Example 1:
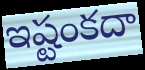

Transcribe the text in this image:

ఇష్టంకదా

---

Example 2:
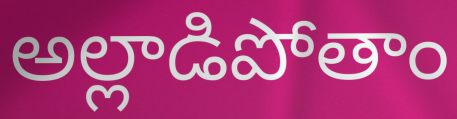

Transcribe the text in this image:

అల్లాడిపోతాం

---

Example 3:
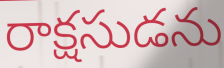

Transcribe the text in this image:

రాక్షసుడను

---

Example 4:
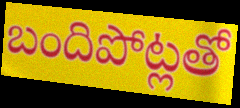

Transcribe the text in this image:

బందిపోట్లతో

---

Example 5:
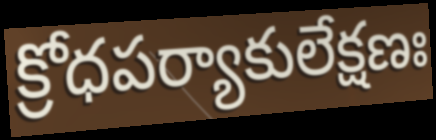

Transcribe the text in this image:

క్రోధపర్యాకులేక్షణః